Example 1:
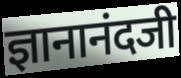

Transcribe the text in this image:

ज्ञानानंदजी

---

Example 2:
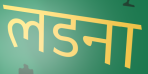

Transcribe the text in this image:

लडना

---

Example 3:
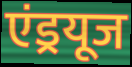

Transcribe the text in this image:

एंड्रयूज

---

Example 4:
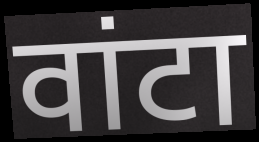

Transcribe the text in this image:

वांटा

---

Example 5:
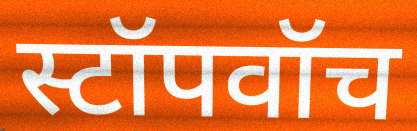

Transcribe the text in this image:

स्टॉपवॉच